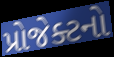
પ્રોજેક્ટનો